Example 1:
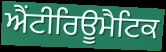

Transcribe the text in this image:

ਐਂਟੀਰਿਊਮੈਟਿਕ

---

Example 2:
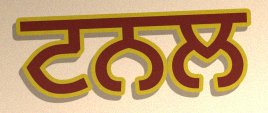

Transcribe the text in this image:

ਟਨਲ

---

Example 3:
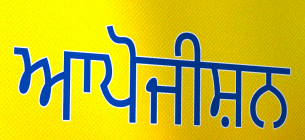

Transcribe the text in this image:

ਆਪੋਜੀਸ਼ਨ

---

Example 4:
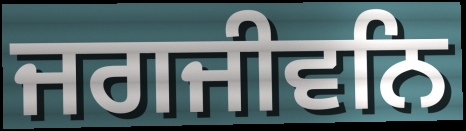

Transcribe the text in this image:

ਜਗਜੀਵਨਿ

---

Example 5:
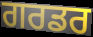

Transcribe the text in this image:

ਗਰਡਰ